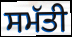
ਸਮੱਤੀ